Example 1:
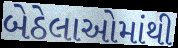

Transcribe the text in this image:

બેઠેલાઓમાંથી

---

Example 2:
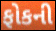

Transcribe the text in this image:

ફોકની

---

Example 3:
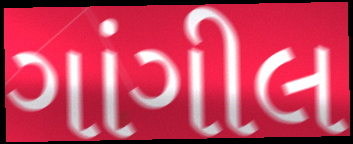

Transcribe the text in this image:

ગાંગીલ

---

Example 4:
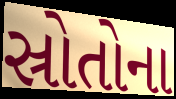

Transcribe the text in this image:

સ્રોતોના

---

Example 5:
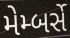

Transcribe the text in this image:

મેમ્બર્સે